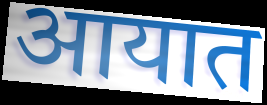
आयात